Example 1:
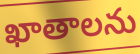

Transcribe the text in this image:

ఖాతాలను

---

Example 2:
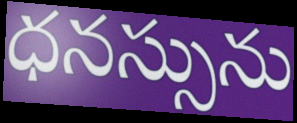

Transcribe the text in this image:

ధనస్సును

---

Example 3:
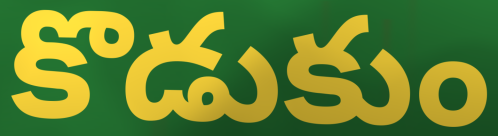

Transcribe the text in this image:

కొడుకుం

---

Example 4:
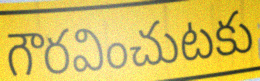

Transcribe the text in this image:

గౌరవించుటకు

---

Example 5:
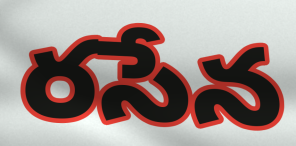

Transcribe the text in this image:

రసేన